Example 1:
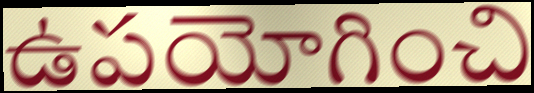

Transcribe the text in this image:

ఉపయోగించి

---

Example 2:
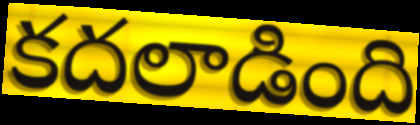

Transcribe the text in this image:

కదలాడింది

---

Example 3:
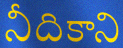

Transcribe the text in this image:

నీదికాని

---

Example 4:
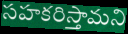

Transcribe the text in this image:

సహకరిస్తామని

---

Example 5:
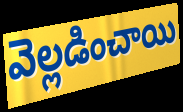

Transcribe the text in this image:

వెల్లడించాయి